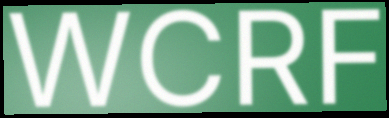
WCRF